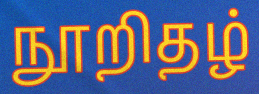
நூறிதழ்